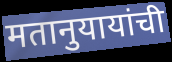
मतानुयायांची